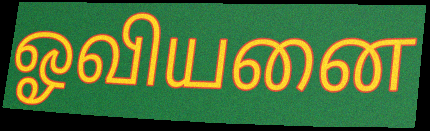
ஓவியனை